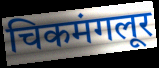
चिकमंगलूर